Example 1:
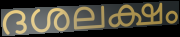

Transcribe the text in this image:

ദശലക്ഷം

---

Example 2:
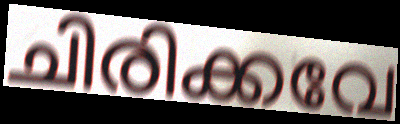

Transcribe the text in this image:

ചിരിക്കവേ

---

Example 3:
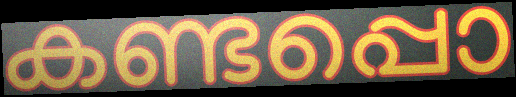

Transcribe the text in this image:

കണ്ടപ്പൊ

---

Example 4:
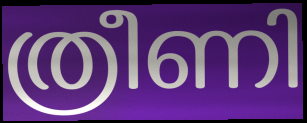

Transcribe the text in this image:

ത്രീണി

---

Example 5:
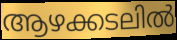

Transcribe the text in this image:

ആഴക്കടലിൽ